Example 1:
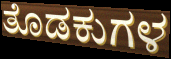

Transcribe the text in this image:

ತೊಡಕುಗಳ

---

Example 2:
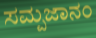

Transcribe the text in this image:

ಸಮ್ಪಜಾನಂ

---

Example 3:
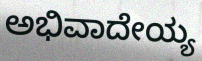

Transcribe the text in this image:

ಅಭಿವಾದೇಯ್ಯ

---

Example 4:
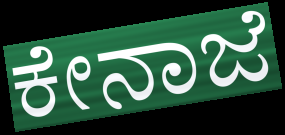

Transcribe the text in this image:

ಕೇನಾಜೆ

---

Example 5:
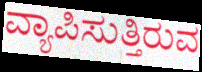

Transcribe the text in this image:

ವ್ಯಾಪಿಸುತ್ತಿರುವ